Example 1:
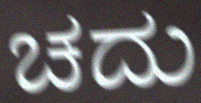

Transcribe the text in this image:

ಚದು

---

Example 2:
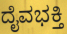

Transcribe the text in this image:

ದೈವಭಕ್ತಿ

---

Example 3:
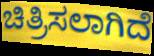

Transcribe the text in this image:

ಚಿತ್ರಿಸಲಾಗಿದೆ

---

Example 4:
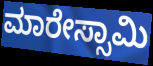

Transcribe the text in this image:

ಮಾರೇಸ್ಸಾಮಿ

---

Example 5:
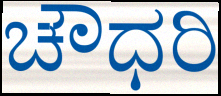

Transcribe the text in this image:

ಚೌಧರಿ